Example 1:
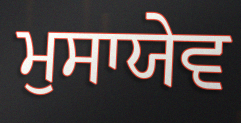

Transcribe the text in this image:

ਮੁਸਾਯੇਵ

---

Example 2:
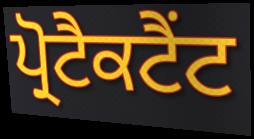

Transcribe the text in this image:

ਪ੍ਰੋਟੈਕਟੈਂਟ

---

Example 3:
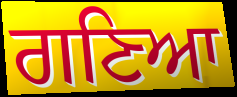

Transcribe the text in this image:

ਗਣਿਆ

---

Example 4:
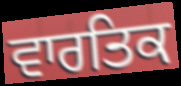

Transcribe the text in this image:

ਵਾਰਤਿਕ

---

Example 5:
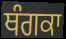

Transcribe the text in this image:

ਥੰਗਕਾ